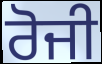
ਰੋਜੀ